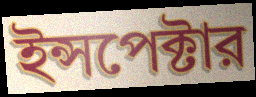
ইন্সপেক্টার